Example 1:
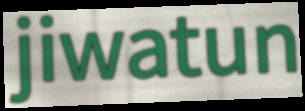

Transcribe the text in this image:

jiwatun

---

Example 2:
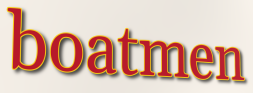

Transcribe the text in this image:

boatmen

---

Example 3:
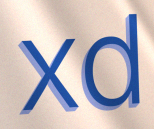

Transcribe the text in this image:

xd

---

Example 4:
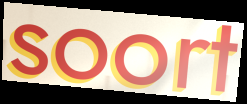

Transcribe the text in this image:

soort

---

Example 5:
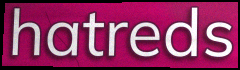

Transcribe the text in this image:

hatreds